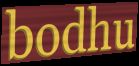
bodhu